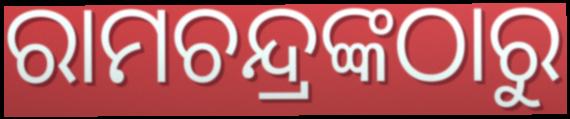
ରାମଚନ୍ଦ୍ରଙ୍କଠାରୁ